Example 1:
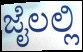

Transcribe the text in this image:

ಜೈಲಲ್ಲಿ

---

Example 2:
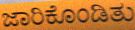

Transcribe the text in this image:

ಜಾರಿಕೊಂಡಿತು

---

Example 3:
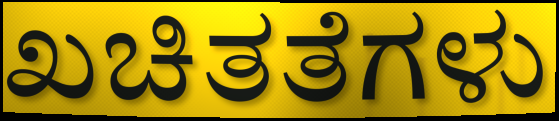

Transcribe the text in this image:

ಖಚಿತತೆಗಳು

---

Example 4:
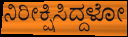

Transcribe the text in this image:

ನಿರೀಕ್ಷಿಸಿದ್ದಳೋ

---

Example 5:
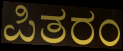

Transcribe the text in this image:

ಪಿತರಂ